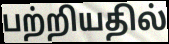
பற்றியதில்